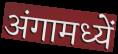
अंगामध्यें